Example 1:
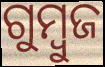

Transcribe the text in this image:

ଗୁମ୍ବୁଜ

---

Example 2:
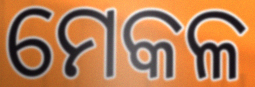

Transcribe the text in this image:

ମେକଳ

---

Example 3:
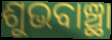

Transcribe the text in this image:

ଶୁଭବାଞ୍ଛା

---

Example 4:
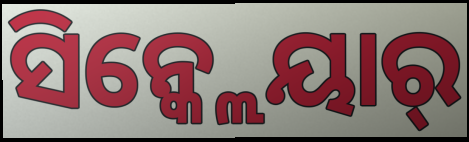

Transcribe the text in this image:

ସିନ୍କ୍ଲେୟାର୍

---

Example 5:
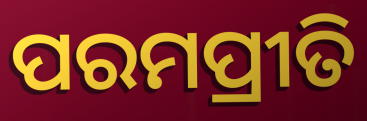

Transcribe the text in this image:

ପରମପ୍ରୀତି